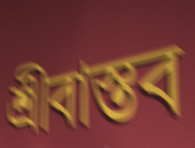
শ্রীবাস্তব